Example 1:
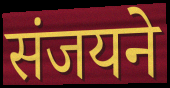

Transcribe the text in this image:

संजयने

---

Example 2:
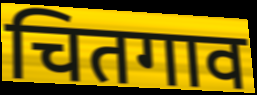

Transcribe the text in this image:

चितगाव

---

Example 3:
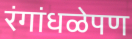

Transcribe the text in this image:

रंगांधळेपण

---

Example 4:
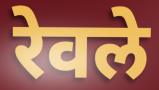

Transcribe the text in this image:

रेवले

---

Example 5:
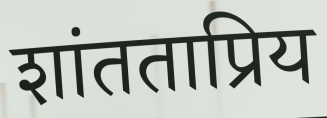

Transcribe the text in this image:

शांतताप्रिय